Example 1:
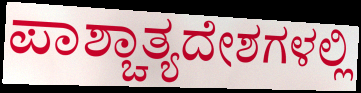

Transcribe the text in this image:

ಪಾಶ್ಚಾತ್ಯದೇಶಗಳಲ್ಲಿ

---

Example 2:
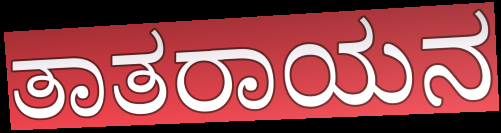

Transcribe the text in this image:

ತಾತರಾಯನ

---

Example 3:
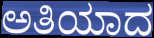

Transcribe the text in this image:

ಅತಿಯಾದ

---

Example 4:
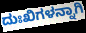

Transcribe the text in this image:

ದುಃಖಿಗಳನ್ನಾಗಿ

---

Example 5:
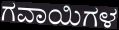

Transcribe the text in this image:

ಗವಾಯಿಗಳ